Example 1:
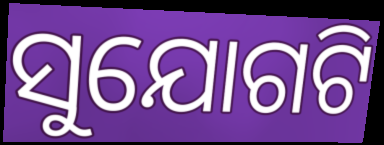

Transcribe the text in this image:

ସୁଯୋଗଟି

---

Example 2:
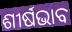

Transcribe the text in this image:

ଶୀର୍ଷଭାବ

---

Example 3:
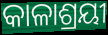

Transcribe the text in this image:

କାଳାଶ୍ରୟୀ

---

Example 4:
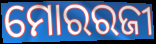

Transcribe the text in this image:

ମୋରରଜୀ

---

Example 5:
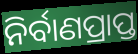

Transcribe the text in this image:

ନିର୍ବାଣପ୍ରାପ୍ତ